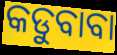
କଡୁବାବା